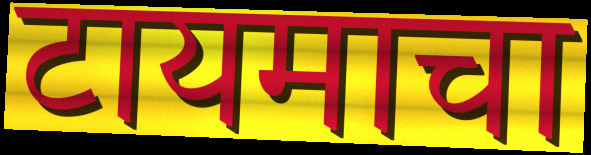
टायमाचा